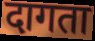
दागता